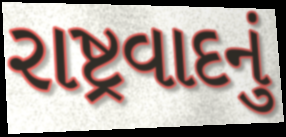
રાષ્ટ્રવાદનું